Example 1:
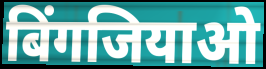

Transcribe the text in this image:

बिंगजियाओ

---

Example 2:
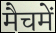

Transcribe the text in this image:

मैचमें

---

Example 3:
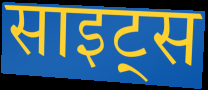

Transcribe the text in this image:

साइट्स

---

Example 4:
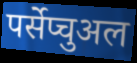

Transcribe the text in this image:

पर्सेप्चुअल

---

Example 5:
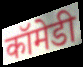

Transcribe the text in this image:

कॉमेडी